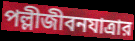
পল্লীজীবনযাত্রার